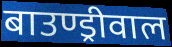
बाउण्ड्रीवाल